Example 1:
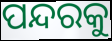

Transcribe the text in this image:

ପନ୍ଦରକୁ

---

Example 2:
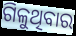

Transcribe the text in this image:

ଗିଳୁଥିବାର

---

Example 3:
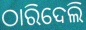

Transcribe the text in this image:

ଠାରିଦେଲି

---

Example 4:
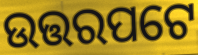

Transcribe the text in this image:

ଉତ୍ତରପଟେ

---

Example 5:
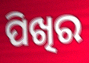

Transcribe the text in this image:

ପିଖିର